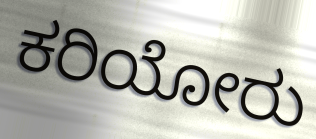
ಕರಿಯೋರು